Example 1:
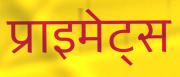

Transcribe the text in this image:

प्राइमेट्स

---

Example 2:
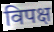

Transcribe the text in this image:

विपक्ष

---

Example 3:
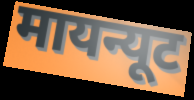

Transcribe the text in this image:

मायन्यूट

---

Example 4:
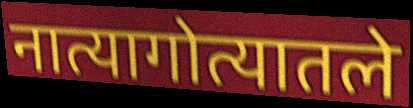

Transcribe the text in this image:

नात्यागोत्यातले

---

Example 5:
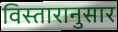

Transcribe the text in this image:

विस्तारानुसार